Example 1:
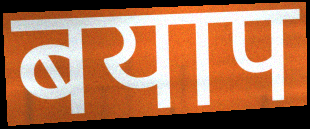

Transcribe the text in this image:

बयाप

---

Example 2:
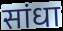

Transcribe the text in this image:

सांधा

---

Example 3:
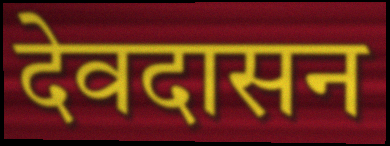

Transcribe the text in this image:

देवदासन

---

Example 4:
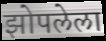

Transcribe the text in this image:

झोपलेला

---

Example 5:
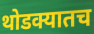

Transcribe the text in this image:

थोडक्यातच